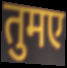
तुमए